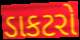
ડાકટરો